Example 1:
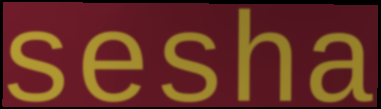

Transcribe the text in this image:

sesha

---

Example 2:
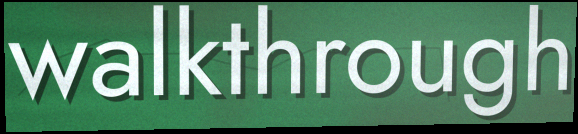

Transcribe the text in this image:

walkthrough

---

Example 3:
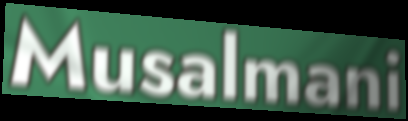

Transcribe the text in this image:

Musalmani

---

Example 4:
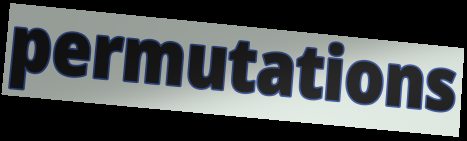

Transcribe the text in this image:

permutations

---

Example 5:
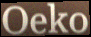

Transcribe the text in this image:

Oeko